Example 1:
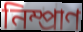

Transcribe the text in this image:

নিম্প্রাণ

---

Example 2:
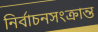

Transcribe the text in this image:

নির্বাচনসংক্রান্ত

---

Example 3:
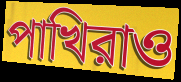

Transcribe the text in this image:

পাখিরাও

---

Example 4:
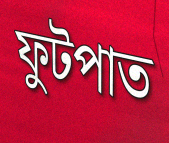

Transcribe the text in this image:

ফুটপাত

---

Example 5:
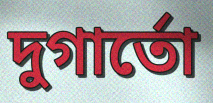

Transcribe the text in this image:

দুগার্তো